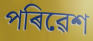
পৰিৱেশ